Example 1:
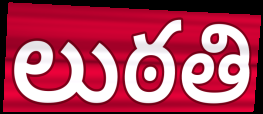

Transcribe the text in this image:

లుఠతి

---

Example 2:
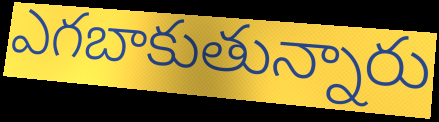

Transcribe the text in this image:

ఎగబాకుతున్నారు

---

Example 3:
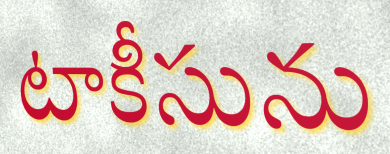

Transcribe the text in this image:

టాకీసును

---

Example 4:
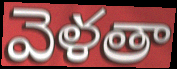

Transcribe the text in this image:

వెళతా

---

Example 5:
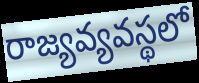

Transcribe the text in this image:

రాజ్యవ్యవస్థలో